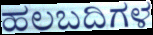
ಹಲಬದಿಗಳ